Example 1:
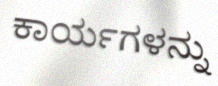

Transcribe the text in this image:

ಕಾರ್ಯಗಳನ್ನು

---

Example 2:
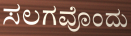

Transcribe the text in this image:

ಸಲಗವೊಂದು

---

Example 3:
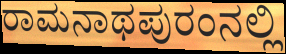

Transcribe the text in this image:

ರಾಮನಾಥಪುರಂನಲ್ಲಿ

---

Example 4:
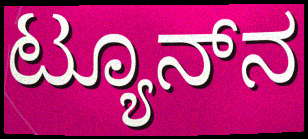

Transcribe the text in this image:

ಟ್ಯೂನ್‌ನ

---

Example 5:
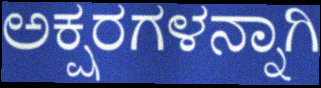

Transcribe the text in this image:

ಅಕ್ಷರಗಳನ್ನಾಗಿ